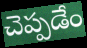
చెప్పడేం